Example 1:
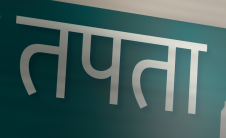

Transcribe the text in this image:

तपता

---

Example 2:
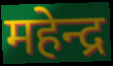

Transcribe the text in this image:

महेन्‍द्र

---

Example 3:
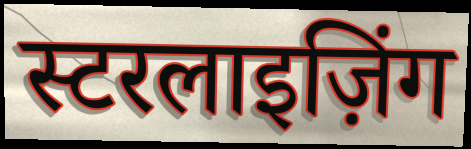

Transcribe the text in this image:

स्टरलाइज़िंग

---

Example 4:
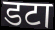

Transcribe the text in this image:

डटा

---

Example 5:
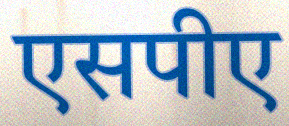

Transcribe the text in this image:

एसपीए